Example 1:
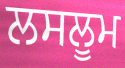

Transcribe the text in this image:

ਲਸਲੂਮ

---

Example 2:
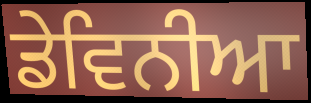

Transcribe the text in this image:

ਡੇਵਿਨੀਆ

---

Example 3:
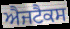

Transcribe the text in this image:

ਐਜਟੈਕਸ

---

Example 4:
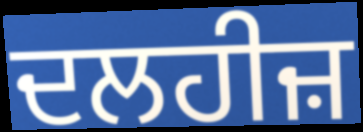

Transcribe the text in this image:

ਦਲਹੀਜ਼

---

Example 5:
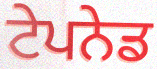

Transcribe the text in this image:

ਟੇਪਨੇਡ